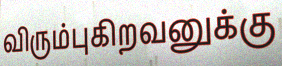
விரும்புகிறவனுக்கு